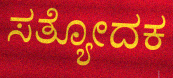
ಸತ್ಯೋದಕ